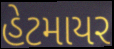
હેટમાયર